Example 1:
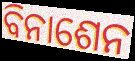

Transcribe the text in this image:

ବିନାଶେନ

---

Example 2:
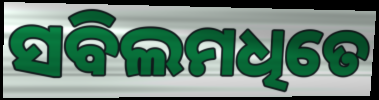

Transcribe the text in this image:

ସବିଲମଧିତେ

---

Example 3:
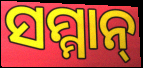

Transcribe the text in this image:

ସମ୍ମାନ୍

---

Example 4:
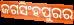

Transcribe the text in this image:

ଜଗସିଂହପୁରର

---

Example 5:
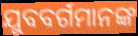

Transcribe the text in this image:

ଯୁବବର୍ଗମାନଙ୍କ